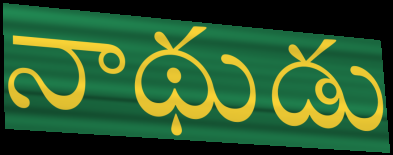
నాథుడు